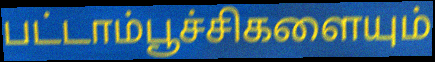
பட்டாம்பூச்சிகளையும்